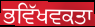
ਭਵਿੱਖਵਕਤਾ